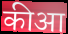
कीआ